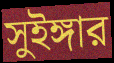
সুইঙ্গার